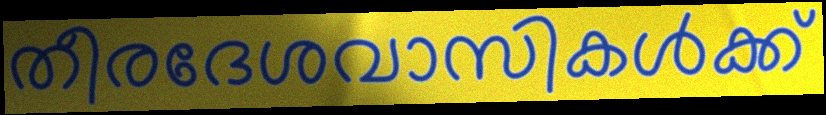
തീരദേശവാസികൾക്ക്